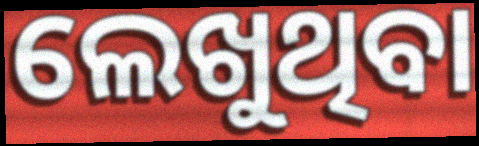
ଲେଖୁଥିବା